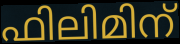
ഫിലിമിന്